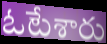
ఓటేశారు